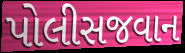
પોલીસજવાન